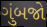
ગુંબજો